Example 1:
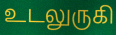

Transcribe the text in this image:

உடலுருகி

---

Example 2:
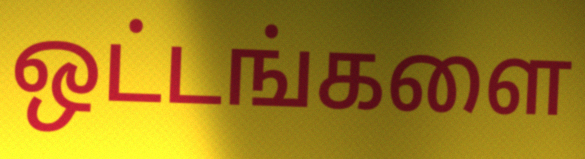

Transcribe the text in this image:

ஒட்டங்களை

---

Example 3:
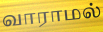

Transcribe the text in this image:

வாராமல்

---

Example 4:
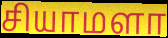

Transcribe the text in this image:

சியாமளா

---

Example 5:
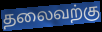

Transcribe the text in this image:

தலைவற்கு